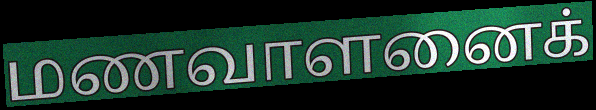
மணவாளனைக்